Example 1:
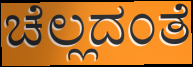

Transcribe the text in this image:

ಚೆಲ್ಲದಂತೆ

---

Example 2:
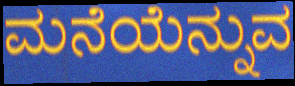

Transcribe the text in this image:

ಮನೆಯೆನ್ನುವ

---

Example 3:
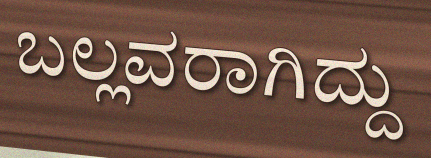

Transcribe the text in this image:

ಬಲ್ಲವರಾಗಿದ್ದು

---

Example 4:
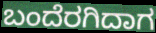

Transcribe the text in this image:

ಬಂದೆರಗಿದಾಗ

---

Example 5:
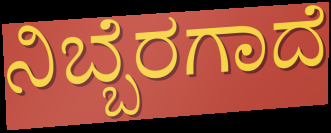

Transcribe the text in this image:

ನಿಬ್ಬೆರಗಾದೆ